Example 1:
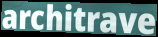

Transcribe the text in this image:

architrave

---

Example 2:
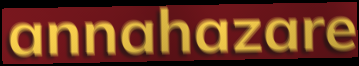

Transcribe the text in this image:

annahazare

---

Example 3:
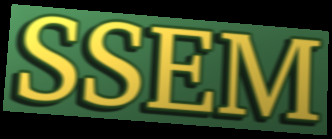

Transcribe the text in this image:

SSEM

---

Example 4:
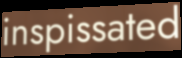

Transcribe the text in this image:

inspissated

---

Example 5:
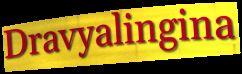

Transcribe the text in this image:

Dravyalingina